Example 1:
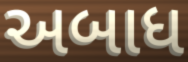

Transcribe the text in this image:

અબાધ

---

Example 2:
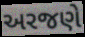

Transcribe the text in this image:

અરજણે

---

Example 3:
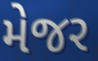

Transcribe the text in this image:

મેજર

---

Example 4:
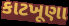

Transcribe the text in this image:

કાટખૂણા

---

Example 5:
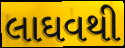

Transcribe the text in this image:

લાઘવથી